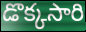
డొక్కసారి